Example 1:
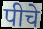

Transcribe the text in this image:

पीचे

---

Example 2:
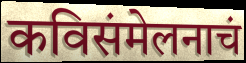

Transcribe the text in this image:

कविसंमेलनाचं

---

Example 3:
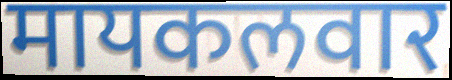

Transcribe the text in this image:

मायकलवार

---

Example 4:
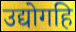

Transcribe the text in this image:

उद्योगहि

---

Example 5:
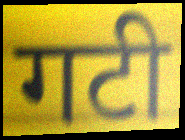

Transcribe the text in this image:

गटी